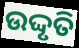
ଉଦ୍ଦୃତି